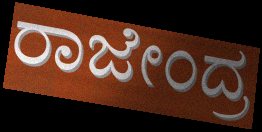
ರಾಜೇಂದ್ರ